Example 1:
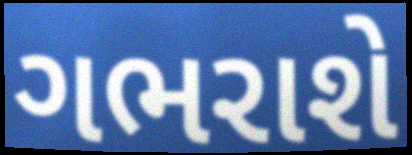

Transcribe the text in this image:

ગભરાશે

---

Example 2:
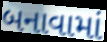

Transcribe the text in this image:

બનાવામાં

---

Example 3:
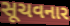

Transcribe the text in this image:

સૂચવનાર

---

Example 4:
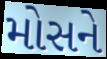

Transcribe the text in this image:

મોસને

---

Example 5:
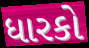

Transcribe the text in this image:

ધારકો